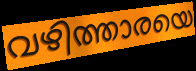
വഴിത്താരയെ